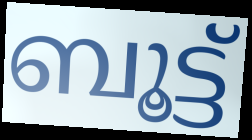
ബൂട്ട്